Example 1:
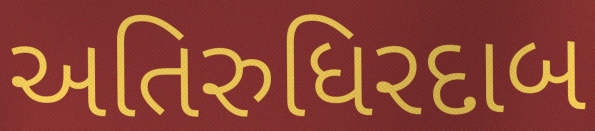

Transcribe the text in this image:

અતિરુધિરદાબ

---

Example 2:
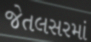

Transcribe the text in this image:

જેતલસરમાં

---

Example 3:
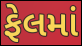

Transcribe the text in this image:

ફેલમાં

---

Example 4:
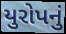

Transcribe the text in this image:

યુરોપનું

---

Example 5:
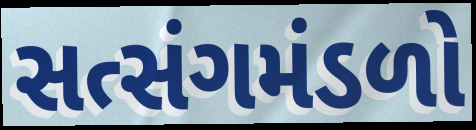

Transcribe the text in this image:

સત્સંગમંડળો